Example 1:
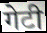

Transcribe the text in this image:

गेटी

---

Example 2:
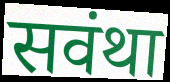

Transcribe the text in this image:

सवंथा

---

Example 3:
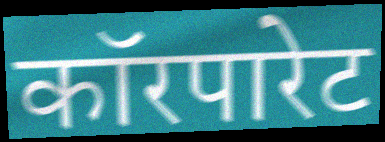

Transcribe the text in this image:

कॉरपारेट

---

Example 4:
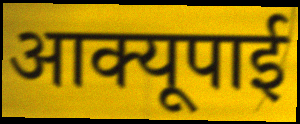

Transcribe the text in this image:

आक्यूपाई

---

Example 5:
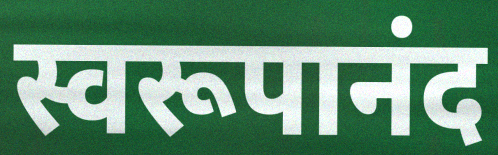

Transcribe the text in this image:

स्वरूपानंद